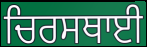
ਚਿਰਸਥਾਈ